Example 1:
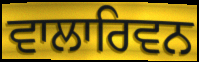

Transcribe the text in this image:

ਵਾਲਾਰਿਵਨ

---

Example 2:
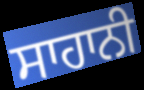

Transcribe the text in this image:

ਸਾਹਾਨੀ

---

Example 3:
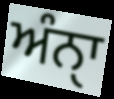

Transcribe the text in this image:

ਅੰਨੑਾ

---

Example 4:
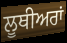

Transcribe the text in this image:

ਲੂਥੀਅਰਾਂ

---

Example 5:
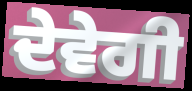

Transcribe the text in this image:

ਦੇਵੇਗੀ